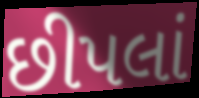
છીપલાં